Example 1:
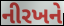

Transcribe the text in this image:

નીરખને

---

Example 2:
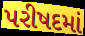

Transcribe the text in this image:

પરીષદમાં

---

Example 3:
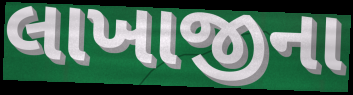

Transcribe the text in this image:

લાખાજીના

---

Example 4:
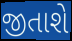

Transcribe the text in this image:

જીતાશે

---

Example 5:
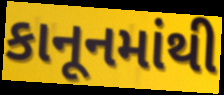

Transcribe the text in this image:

કાનૂનમાંથી